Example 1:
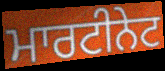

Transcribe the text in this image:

ਮਾਰਟੀਨੇਟ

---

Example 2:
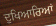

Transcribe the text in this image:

ਦੁਖਿਆਰਿਆਂ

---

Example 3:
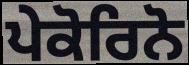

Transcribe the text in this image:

ਪੇਕੋਰਿਨੋ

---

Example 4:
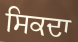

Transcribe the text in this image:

ਸਿਕਦਾ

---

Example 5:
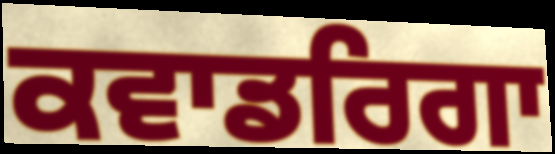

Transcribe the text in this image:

ਕਵਾਡਰਿਗਾ